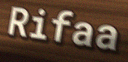
Rifaa